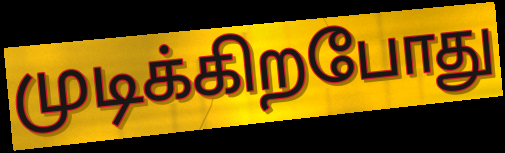
முடிக்கிறபோது